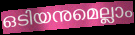
ഒടിയനുമെല്ലാം